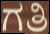
ಗತಿ